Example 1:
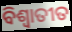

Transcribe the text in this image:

ବିଶ୍ୱାତୀତ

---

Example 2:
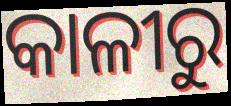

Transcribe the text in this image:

କାଳୀରୁ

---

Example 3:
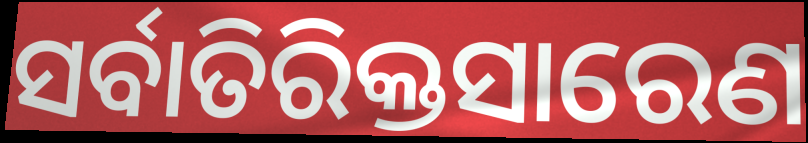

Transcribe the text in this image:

ସର୍ବାତିରିକ୍ତସାରେଣ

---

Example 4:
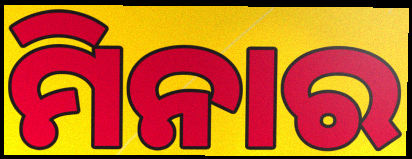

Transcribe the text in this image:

ମିନାର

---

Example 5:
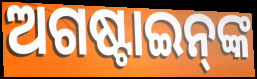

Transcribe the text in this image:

ଅଗଷ୍ଟାଇନ୍‌ଙ୍କ